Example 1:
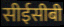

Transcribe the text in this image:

सीईसीबी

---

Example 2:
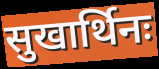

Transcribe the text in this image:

सुखार्थिनः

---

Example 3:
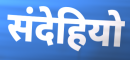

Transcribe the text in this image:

संदेहियो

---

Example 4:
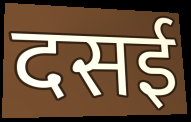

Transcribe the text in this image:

दसई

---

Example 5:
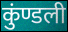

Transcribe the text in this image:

कुंण्डली